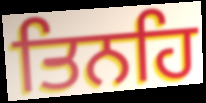
ਤਿਨਹਿ